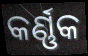
କର୍ଣ୍ଣକ